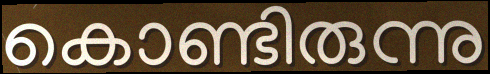
കൊണ്ടിരുന്നു